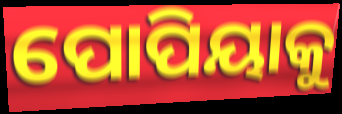
ପୋପିୟାକୁ